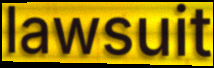
lawsuit